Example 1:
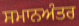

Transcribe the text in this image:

ਸਮਾਨਅੰਤਰ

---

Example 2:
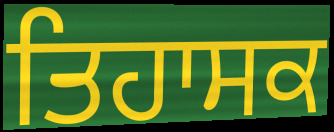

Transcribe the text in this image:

ਤਿਹਾਸਕ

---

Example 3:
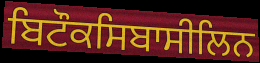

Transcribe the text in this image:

ਬਿਟੌਕਸਿਬਾਸੀਲਿਨ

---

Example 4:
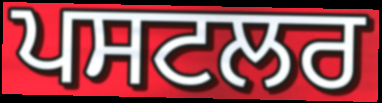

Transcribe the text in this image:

ਪਸਟਲਰ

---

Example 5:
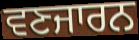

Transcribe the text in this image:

ਵਣਜਾਰਨ